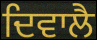
ਦਿਵਾਲੈ